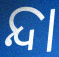
ନ୍ଦା